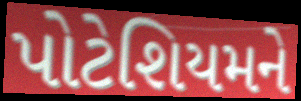
પોટેશિયમને